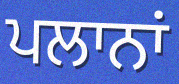
ਪਲਾਨਾਂ